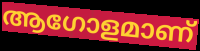
ആഗോളമാണ്